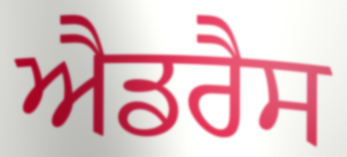
ਐਡਰੈਸ